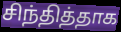
சிந்தித்தாக